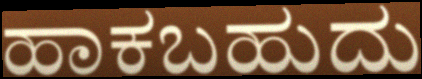
ಹಾಕಬಹುದು